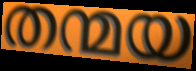
തന്മയ